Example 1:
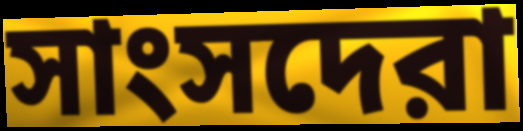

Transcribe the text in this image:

সাংসদেরা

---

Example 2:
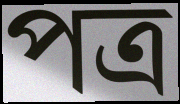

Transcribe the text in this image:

পত্র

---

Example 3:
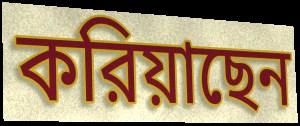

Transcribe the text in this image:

করিয়াছেন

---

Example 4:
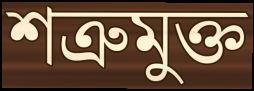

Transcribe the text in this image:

শত্রুমুক্ত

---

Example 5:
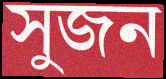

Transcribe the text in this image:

সুজন